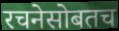
रचनेसोबतच